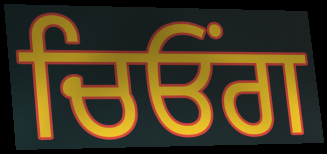
ਚਿਓਂਗ